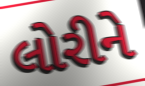
લોરીને